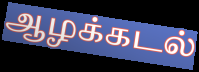
ஆழக்கடல்